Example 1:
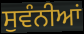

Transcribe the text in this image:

ਸੁਵੰਨੀਆਂ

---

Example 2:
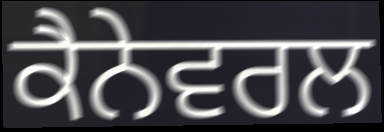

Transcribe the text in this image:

ਕੈਨੇਵਰਲ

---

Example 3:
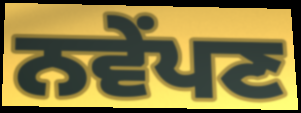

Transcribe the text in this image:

ਨਵੇਂਪਣ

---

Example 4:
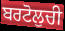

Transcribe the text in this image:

ਬਰਟੋਲੁਚੀ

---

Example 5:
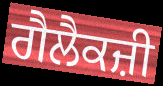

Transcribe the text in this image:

ਗੈਲੈਕਜ਼ੀ